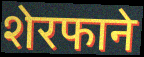
शेरफाने